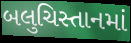
બલુચિસ્તાનમાં